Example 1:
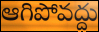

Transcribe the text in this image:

ఆగిపోవద్దు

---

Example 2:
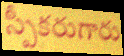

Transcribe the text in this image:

స్పీకరుగారు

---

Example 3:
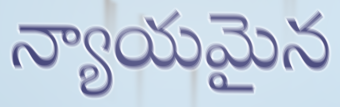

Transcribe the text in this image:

న్యాయమైన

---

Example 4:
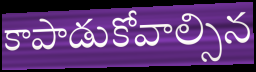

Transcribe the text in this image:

కాపాడుకోవాల్సిన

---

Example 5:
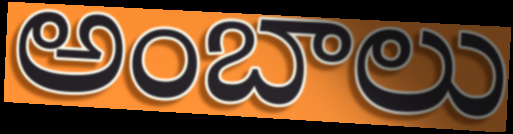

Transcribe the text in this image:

అంబాలు